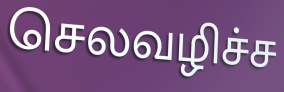
செலவழிச்ச